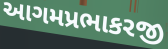
આગમપ્રભાકરજી